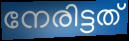
നേരിട്ടത്